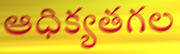
ఆధిక్యతగల